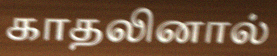
காதலினால்